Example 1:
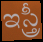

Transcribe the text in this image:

ఇస్త్రీ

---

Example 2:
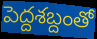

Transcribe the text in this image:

పెద్దశబ్దంతో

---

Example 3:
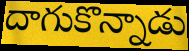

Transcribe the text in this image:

దాగుకొన్నాడు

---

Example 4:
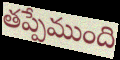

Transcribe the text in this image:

తప్పేముంది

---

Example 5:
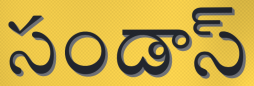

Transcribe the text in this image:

సండాస్